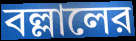
বল্লালের